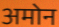
अमोन